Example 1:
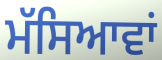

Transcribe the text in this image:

ਮੱਸਿਆਵਾਂ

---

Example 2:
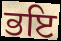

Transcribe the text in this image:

ਭਇ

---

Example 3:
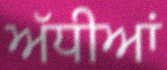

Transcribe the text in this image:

ਅੱਧੀਆਂ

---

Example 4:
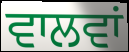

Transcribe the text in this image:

ਵਾਲਵਾਂ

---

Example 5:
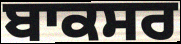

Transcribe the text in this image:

ਬਾਕਸਰ